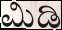
ಮಿಡಿ